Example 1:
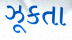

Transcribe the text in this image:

ઝૂકતા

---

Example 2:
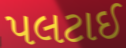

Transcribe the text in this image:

પલટાઈ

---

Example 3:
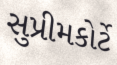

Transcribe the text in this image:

સુપ્રીમકોર્ટે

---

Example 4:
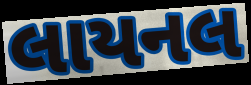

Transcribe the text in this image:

લાયનલ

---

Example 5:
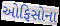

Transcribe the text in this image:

ઓફિસોના